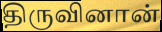
திருவினான்